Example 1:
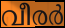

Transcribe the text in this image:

വീരർ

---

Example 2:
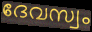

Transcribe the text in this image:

ദേവസ്വം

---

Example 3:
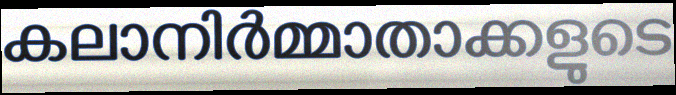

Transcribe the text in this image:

കലാനിർമ്മാതാക്കളുടെ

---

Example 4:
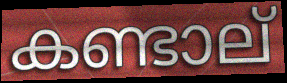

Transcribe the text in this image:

കണ്ടാല്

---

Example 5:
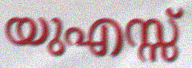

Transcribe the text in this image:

യുഎസ്സ്